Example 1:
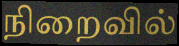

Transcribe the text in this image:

நிறைவில்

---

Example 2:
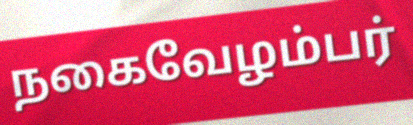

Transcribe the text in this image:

நகைவேழம்பர்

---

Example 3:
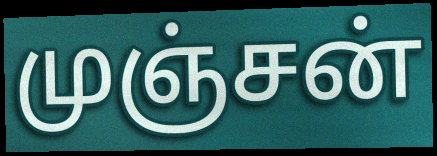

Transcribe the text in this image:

முஞ்சன்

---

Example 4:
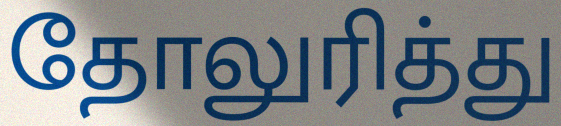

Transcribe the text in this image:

தோலுரித்து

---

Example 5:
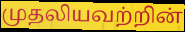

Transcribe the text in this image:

முதலியவற்றின்